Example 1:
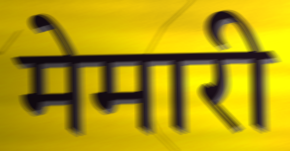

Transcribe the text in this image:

मेमारी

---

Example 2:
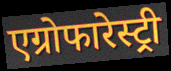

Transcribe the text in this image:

एग्रोफारेस्ट्री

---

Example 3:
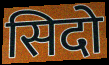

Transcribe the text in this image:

सिदो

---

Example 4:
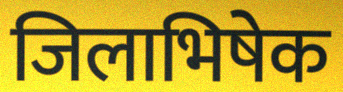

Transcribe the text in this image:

जिलाभिषेक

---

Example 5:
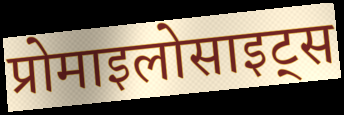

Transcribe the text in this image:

प्रोमाइलोसाइट्स